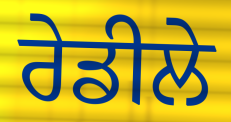
ਰੇਡੀਲੇ